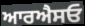
ਆਰਐਸਓ